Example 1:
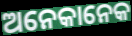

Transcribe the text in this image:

ଅନେକାନେକ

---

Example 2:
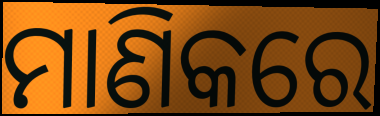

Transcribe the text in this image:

ମାଣିକରେ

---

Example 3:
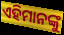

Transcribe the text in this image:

ଏହିମାନଙ୍କୁ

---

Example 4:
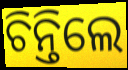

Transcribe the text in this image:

ଚିନ୍ତିଲେ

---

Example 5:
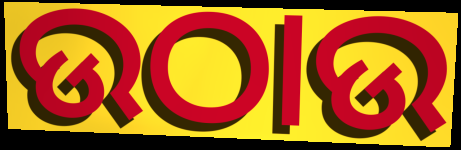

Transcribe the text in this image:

ଉଠାଉ